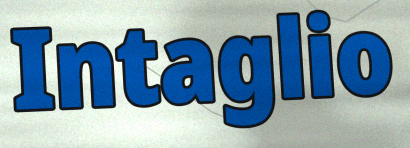
Intaglio